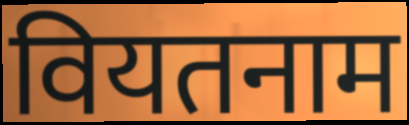
वियतनाम